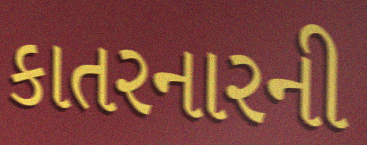
કાતરનારની